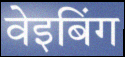
वेइबिंग